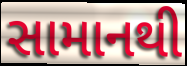
સામાનથી